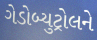
ગેડોબ્યુટ્રોલને